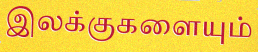
இலக்குகளையும்